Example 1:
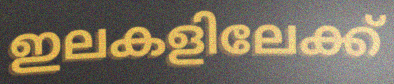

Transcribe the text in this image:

ഇലകളിലേക്ക്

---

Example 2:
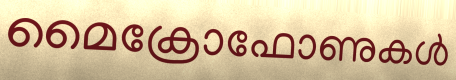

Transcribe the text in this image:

മൈക്രോഫോണുകൾ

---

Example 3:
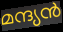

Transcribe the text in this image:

മന്ദ്യൻ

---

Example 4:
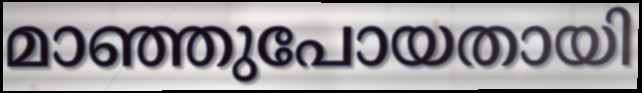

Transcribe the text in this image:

മാഞ്ഞുപോയതായി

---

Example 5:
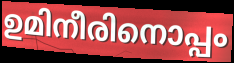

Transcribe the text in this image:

ഉമിനീരിനൊപ്പം